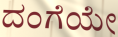
ದಂಗೆಯೇ